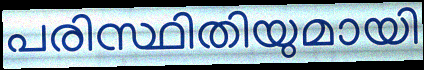
പരിസ്ഥിതിയുമായി